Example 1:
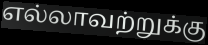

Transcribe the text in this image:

எல்லாவற்றுக்கு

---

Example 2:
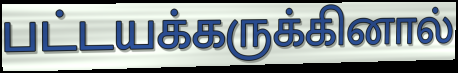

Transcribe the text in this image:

பட்டயக்கருக்கினால்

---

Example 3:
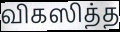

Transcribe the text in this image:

விகஸித்த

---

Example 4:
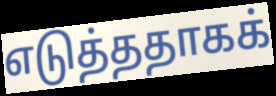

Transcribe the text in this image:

எடுத்ததாகக்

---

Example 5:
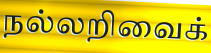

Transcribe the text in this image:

நல்லறிவைக்